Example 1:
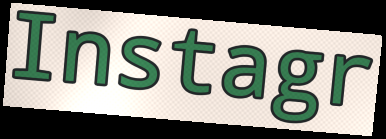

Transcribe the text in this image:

Instagr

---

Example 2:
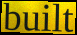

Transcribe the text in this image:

built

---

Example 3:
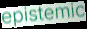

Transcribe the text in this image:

epistemic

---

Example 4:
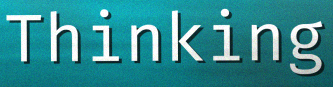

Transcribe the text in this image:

Thinking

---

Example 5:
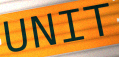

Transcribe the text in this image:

UNIT